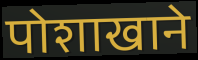
पोशाखाने